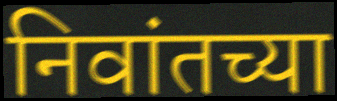
निवांतच्या